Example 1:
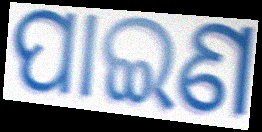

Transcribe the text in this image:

ପାଇଣ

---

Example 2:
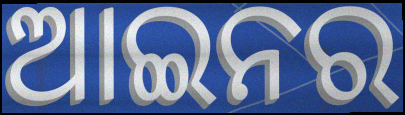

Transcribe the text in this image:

ଆଇନର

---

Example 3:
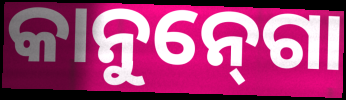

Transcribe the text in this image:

କାନୁନ୍‍ଗୋ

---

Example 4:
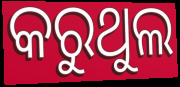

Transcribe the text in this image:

କରୁଥୁଲ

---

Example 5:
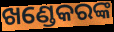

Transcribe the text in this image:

ଖଣ୍ଡେକରଙ୍କ